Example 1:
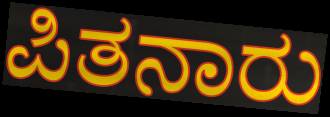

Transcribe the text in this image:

ಪಿತನಾರು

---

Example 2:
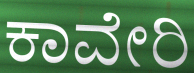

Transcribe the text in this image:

ಕಾವೇರಿ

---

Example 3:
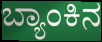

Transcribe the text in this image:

ಬ್ಯಾಂಕಿನ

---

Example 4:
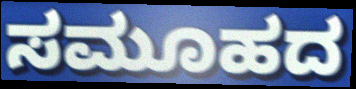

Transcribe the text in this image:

ಸಮೂಹದ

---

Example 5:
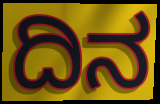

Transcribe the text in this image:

ದಿನ